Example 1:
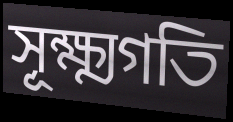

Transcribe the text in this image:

সূক্ষ্মগতি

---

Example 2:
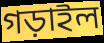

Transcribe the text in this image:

গড়াইল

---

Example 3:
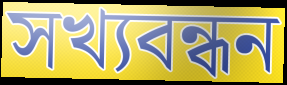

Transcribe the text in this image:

সখ্যবন্ধন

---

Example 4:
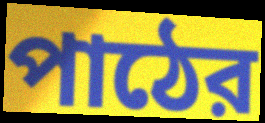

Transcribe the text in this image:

পাঠের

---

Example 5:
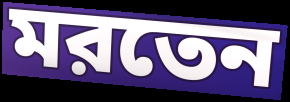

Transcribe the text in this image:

মরতেন